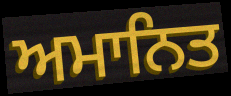
ਅਮਾਨਿਤ